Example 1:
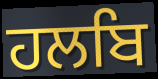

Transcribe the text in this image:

ਹਲਬਿ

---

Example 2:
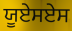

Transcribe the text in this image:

ਯੂਏਸਏਸ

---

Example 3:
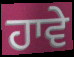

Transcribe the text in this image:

ਹਾਵੇ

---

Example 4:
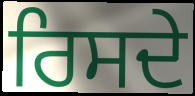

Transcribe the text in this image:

ਰਿਸਦੇ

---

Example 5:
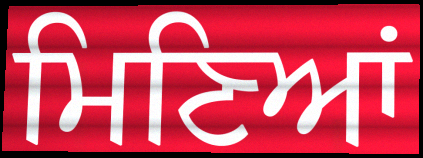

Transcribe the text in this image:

ਮਿਣਿਆਂ